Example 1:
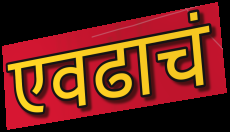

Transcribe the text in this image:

एवढाचं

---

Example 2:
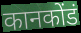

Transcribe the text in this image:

कानकोंडं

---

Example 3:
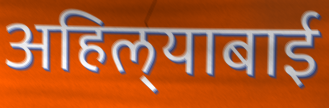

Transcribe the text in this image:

अहिल्याबाई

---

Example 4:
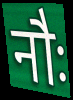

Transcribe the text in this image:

नौः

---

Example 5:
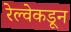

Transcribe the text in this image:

रेल्वेकडून